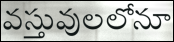
వస్తువులలోనూ